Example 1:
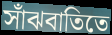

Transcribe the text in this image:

সাঁঝবাতিতে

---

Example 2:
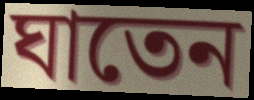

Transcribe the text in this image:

ঘাতেন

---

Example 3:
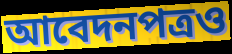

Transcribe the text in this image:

আবেদনপত্রও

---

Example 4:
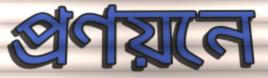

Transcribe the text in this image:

প্রণয়নে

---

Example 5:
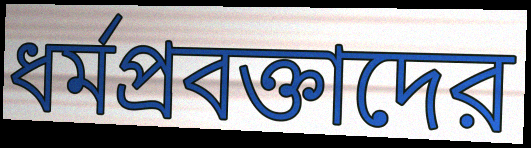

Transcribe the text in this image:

ধর্মপ্রবক্তাদের